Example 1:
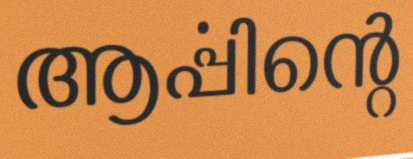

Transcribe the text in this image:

ആൎപ്പിന്റെ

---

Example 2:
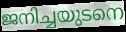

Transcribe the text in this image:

ജനിച്ചയുടനെ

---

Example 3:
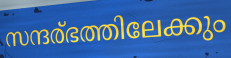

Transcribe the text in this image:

സന്ദര്ഭത്തിലേക്കും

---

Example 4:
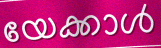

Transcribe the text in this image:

യേക്കാൾ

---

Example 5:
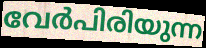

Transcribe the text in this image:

വേർപിരിയുന്ന